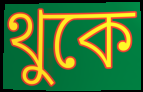
থুকে